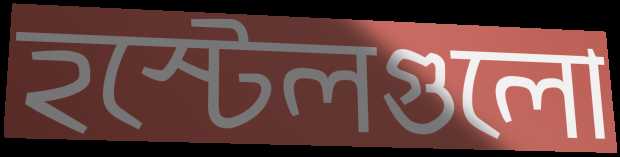
হস্টেলগুলো